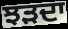
ਝੜਦਾ